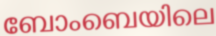
ബോംബെയിലെ